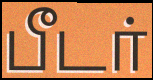
பீடர்